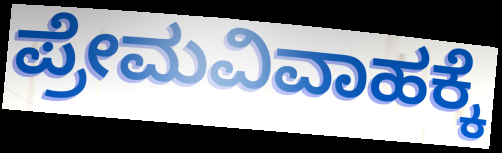
ಪ್ರೇಮವಿವಾಹಕ್ಕೆ